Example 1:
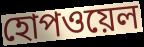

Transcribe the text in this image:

হোপওয়েল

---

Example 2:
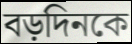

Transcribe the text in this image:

বড়দিনকে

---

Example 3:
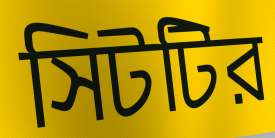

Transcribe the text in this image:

সিটটির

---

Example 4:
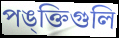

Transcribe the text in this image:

পঙ্‌ক্তিগুলি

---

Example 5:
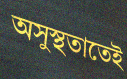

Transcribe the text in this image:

অসুস্থতাতেই